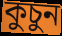
কুচুন